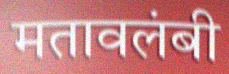
मतावलंबी